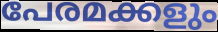
പേരമക്കളും